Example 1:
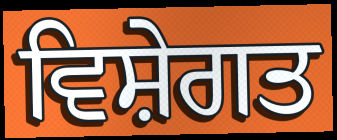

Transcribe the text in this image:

ਵਿਸ਼ੇਗਤ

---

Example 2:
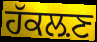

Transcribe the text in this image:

ਹੱਕਲ਼ਣ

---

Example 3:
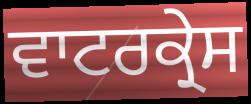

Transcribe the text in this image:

ਵਾਟਰਕ੍ਰੇਸ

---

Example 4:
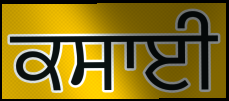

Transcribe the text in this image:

ਕਸਾਈ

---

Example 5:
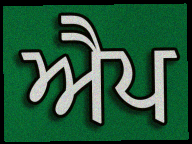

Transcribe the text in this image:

ਐਪ